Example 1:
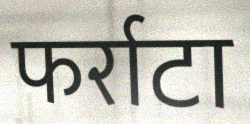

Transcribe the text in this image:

फर्राटा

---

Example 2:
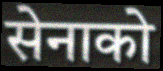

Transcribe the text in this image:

सेनाको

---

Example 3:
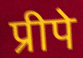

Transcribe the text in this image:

प्रीपे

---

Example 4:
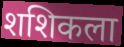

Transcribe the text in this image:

शशिकला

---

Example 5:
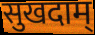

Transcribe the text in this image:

सुखदाम्